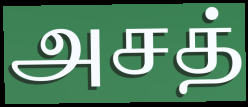
அசத்